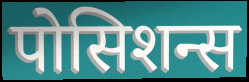
पोसिशन्स